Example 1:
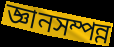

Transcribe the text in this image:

জ্ঞানসম্পন্ন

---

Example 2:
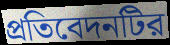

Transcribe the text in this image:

প্রতিবেদনটির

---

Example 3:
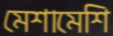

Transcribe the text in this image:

মেশামেশি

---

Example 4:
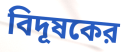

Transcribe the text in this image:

বিদূষকের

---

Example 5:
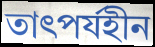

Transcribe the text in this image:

তাৎপর্যহীন